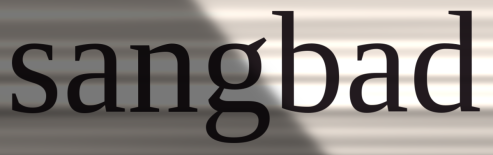
sangbad